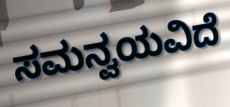
ಸಮನ್ವಯವಿದೆ